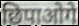
छिपाओगे